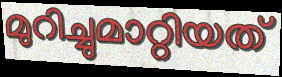
മുറിച്ചുമാറ്റിയത്